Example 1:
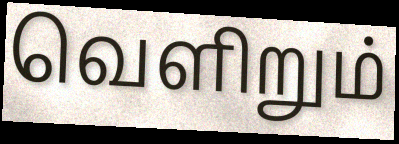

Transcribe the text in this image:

வெளிறும்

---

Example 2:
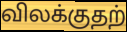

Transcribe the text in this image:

விலக்குதற்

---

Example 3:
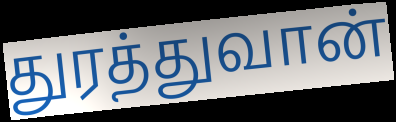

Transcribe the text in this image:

துரத்துவான்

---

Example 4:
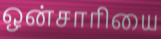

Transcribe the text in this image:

ஒன்சாரியை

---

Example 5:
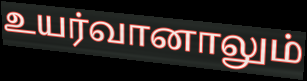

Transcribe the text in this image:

உயர்வானாலும்